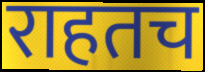
राहतच